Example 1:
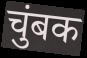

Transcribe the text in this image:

चुंबक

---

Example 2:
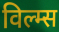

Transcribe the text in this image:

विल्म्स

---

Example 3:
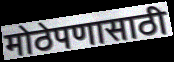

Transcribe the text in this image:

मोठेपणासाठी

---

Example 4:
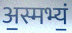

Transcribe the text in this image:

अ॒स्मभ्यं॒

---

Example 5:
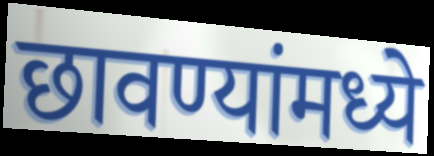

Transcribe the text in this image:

छावण्यांमध्ये